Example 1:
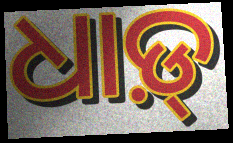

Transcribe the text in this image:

ଧାଡ଼୍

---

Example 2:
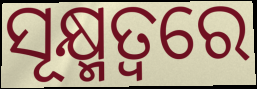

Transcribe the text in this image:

ସୂକ୍ଷ୍ମତ୍ୱରେ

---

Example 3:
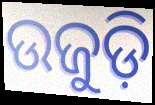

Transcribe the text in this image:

ଉଜୁଡ଼ି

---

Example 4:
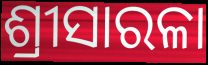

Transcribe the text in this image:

ଶ୍ରୀସାରଳା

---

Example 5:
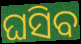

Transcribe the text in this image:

ଘସିବ